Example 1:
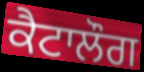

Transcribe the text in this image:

ਕੈਟਾਲੌਗ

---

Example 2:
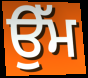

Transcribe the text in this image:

ਉੱਮ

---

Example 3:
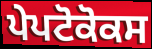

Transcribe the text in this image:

ਪੇਪਟੋਕੋਕਸ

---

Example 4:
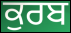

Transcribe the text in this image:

ਕੁਰਬ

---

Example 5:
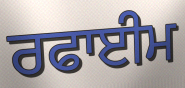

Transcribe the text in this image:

ਰਫਾਈਮ